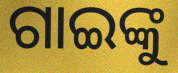
ଗାଇଙ୍କୁ